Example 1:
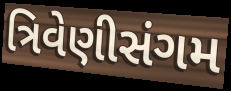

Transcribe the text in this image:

ત્રિવેણીસંગમ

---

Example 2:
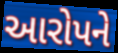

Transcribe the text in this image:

આરોપને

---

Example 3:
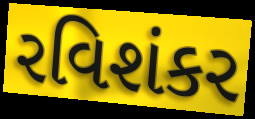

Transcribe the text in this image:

રવિશંકર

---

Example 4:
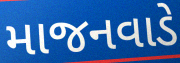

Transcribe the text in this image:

માજનવાડે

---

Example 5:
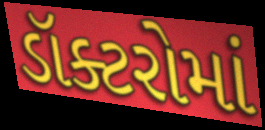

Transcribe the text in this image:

ડૉક્ટરોમાં